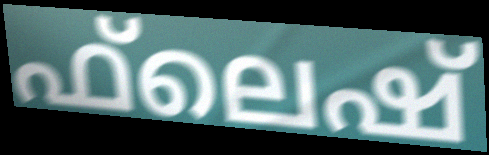
ഫ്‌ലെഷ്